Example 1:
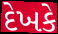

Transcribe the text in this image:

દેખકે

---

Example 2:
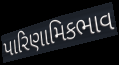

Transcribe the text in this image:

પારિણામિકભાવ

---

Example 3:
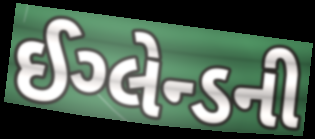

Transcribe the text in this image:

ઈગ્લેન્ડની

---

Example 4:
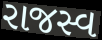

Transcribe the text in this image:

રાજસ્વ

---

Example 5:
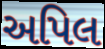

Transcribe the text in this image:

અપિલ